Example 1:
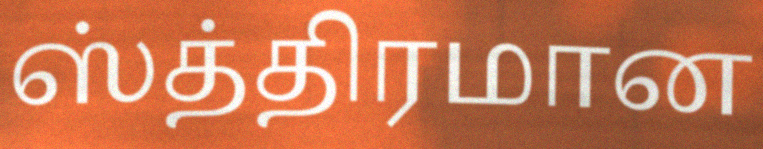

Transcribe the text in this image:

ஸ்த்திரமான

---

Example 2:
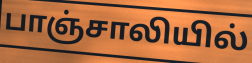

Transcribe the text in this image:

பாஞ்சாலியில்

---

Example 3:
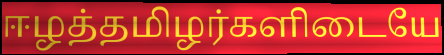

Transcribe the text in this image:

ஈழத்தமிழர்களிடையே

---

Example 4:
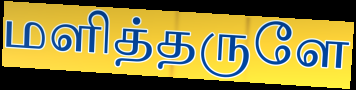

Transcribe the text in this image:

மளித்தருளே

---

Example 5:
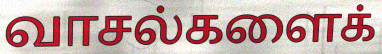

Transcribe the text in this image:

வாசல்களைக்